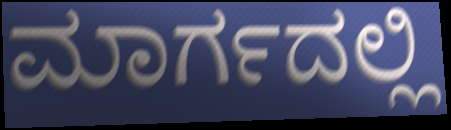
ಮಾರ್ಗದಲ್ಲಿ